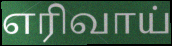
எரிவாய்